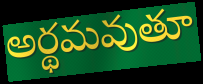
అర్థమవుతూ